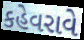
કહેવરાવે